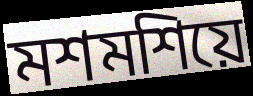
মশমশিয়ে